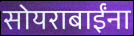
सोयराबाईंना